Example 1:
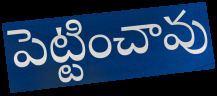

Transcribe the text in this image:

పెట్టించావు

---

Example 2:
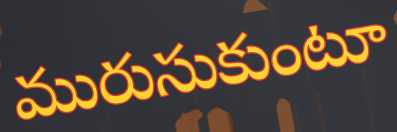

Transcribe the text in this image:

మురుసుకుంటూ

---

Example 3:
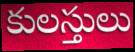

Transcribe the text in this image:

కులస్తులు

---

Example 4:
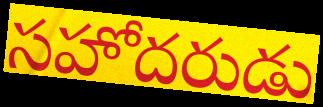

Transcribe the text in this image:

సహోదరుడు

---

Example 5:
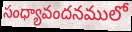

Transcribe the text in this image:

సంధ్యావందనములో